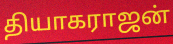
தியாகராஜன்